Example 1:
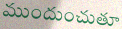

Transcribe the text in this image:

ముందుంచుతూ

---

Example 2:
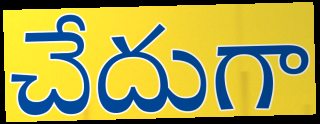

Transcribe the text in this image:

చేదుగా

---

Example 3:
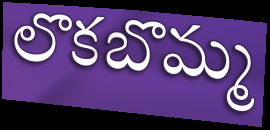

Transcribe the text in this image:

లొకబొమ్మ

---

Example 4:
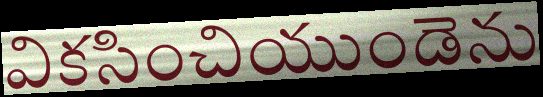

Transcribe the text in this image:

వికసించియుండెను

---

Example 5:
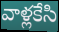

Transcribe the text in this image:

వాళ్లకేసి